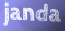
janda